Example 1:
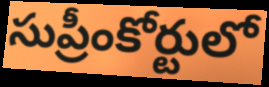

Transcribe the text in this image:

సుప్రీంకోర్టులో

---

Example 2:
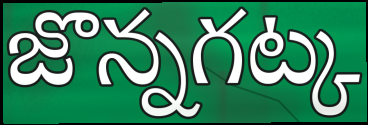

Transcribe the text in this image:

జొన్నగట్క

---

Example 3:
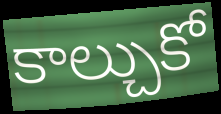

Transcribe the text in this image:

కాల్చుకో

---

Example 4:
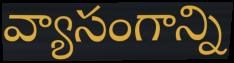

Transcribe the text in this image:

వ్యాసంగాన్ని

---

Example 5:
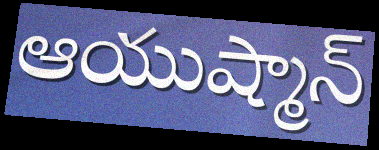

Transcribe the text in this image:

ఆయుష్మాన్